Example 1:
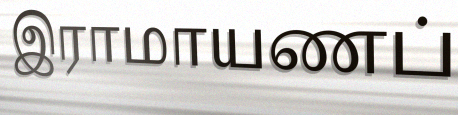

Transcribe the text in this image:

இராமாயணப்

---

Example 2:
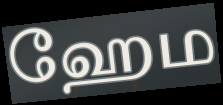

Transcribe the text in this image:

ஹேம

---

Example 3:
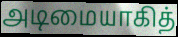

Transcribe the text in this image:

அடிமையாகித்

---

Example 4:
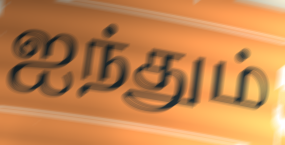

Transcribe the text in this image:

ஐந்தும்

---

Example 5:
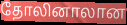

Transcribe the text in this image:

தோலினாலான